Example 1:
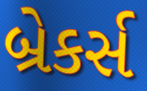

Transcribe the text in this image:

બ્રેકર્સ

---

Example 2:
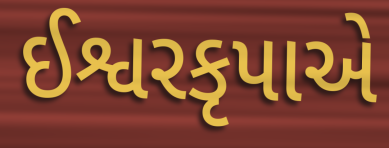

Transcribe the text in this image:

ઈશ્વરકૃપાએ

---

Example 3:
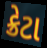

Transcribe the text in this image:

ક્રેટા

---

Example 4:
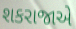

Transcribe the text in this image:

શકરાજાએ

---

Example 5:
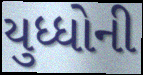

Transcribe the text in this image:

યુધ્ધોની